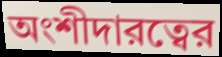
অংশীদারত্বের